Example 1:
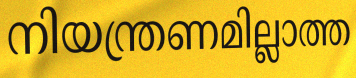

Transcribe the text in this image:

നിയന്ത്രണമില്ലാത്ത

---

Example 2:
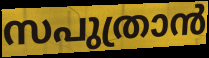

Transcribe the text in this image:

സപുത്രാൻ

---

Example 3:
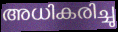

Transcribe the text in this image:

അധികരിച്ചു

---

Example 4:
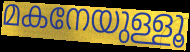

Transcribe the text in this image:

മകനേയുള്ളൂ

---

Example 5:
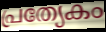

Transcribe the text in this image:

പ്രത്യേകം